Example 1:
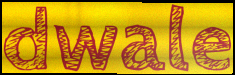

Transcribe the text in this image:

dwale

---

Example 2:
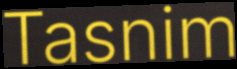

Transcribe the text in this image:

Tasnim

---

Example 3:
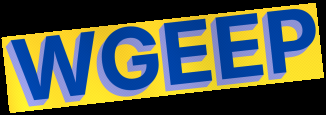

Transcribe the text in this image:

WGEEP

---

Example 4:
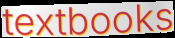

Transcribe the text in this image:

textbooks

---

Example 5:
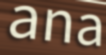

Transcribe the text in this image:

ana